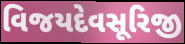
વિજયદેવસૂરિજી